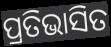
ପ୍ରତିଭାସିତ